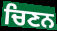
ਚਿਣਨ